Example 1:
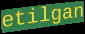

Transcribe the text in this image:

etilgan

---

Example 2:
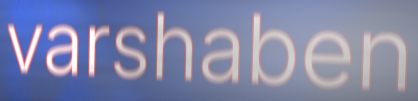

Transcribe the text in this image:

varshaben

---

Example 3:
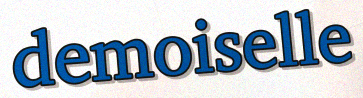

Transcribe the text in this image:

demoiselle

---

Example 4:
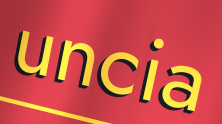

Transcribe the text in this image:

uncia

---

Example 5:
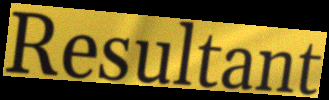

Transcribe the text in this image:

Resultant